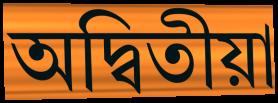
অদ্বিতীয়া